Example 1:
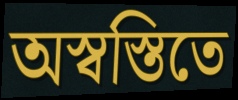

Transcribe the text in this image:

অস্বস্তিতে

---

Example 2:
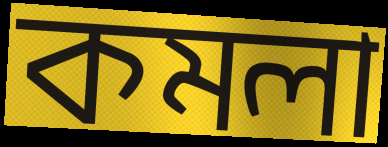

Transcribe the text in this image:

কমলা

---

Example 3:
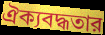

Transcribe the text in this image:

ঐক্যবদ্ধতার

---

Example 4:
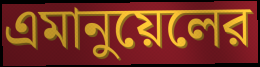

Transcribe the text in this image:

এমানুয়েলের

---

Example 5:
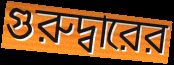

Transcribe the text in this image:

গুরুদ্বারের